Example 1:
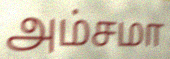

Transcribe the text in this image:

அம்சமா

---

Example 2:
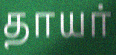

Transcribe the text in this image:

தாயர்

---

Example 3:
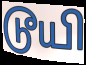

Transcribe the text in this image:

டூயி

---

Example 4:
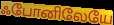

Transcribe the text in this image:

ஃபோனிலேயே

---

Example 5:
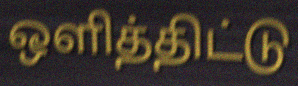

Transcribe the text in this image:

ஒளித்திட்டு